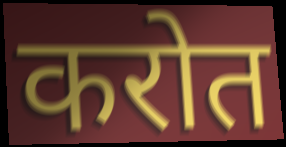
करोत